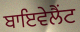
ਬਾਇਵੇਲੈਂਟ